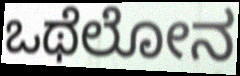
ಒಥೆಲೋನ